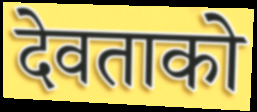
देवताको